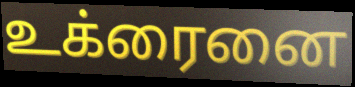
உக்ரைனை